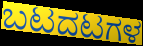
ಬಟದಟಗಳ